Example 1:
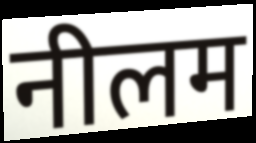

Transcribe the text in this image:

नीलम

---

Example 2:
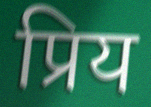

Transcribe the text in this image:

प्रिय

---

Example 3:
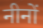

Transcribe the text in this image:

नीनों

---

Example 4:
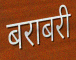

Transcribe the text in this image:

बराबरी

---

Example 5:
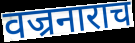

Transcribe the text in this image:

वज्रनाराच